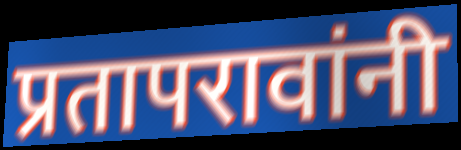
प्रतापरावांनी